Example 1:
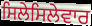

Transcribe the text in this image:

ਸਿਲੇਸਿਲੇਵਾਰ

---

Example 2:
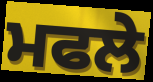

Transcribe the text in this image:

ਮਫਲੇ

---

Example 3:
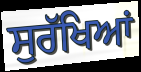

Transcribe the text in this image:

ਸੁਰੱਖਿਆਂ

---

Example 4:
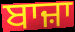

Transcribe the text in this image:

ਬਾਜ਼ਾ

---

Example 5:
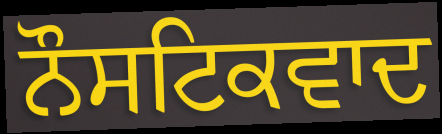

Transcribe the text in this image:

ਨੌਸਟਿਕਵਾਦ